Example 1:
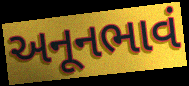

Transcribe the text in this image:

અનૂનભાવં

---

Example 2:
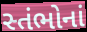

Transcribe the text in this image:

સ્તંભોનાં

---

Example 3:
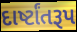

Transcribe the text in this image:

દાર્ષ્ટાંતરૂપ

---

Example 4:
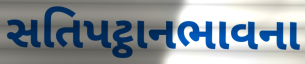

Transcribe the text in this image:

સતિપટ્ઠાનભાવના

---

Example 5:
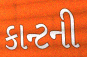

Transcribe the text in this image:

કાન્ટની